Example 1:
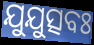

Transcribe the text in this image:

ଯୁଯୁତ୍ସବଃ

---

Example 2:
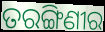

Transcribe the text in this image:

ତରଙ୍ଗିଣୀର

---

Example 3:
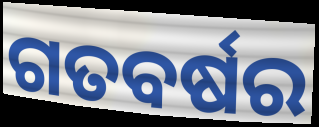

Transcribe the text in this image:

ଗତବର୍ଷର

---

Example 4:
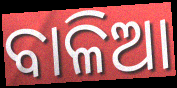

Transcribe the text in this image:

ବାଳିଆ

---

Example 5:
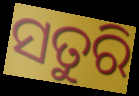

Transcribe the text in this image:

ସତୁରି